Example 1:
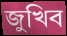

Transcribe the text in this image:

জুখিব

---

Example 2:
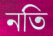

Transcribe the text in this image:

নতি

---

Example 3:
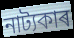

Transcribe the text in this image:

নাট্যকাৰ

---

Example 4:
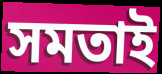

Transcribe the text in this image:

সমতাই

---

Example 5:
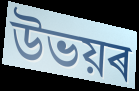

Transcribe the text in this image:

উভয়ৰ